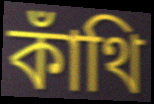
কাঁথি